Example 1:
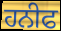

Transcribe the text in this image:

ਹਨੀਫ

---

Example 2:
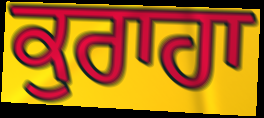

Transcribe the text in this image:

ਕੁਰਾਹਾ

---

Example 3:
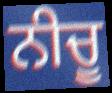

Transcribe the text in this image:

ਨੀਚੂ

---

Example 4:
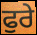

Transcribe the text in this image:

ਫੁਰੇ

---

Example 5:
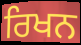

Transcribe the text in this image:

ਰਿਖਨ